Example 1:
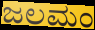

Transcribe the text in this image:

ಜಲಮಂ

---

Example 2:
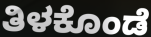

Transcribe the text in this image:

ತಿಳಕೊಂಡೆ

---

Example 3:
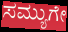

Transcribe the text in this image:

ಸಮ್ಯುಗೇ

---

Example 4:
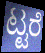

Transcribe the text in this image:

ಟ್ಟರೆ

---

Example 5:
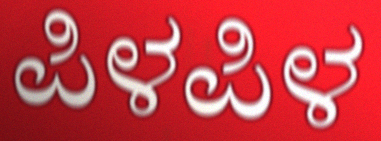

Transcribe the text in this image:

ಪಿಳಪಿಳ